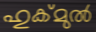
ഹുക്മുൽ